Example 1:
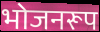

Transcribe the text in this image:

भोजनरूप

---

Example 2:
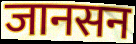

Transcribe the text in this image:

जानसन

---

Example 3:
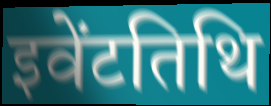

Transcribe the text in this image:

इवेंटतिथि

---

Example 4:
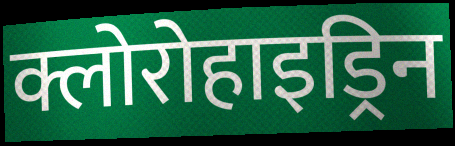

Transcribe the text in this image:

क्लोरोहाइड्रिन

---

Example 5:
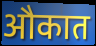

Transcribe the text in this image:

औकात